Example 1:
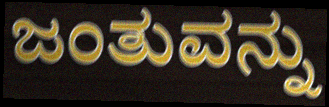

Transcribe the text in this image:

ಜಂತುವನ್ನು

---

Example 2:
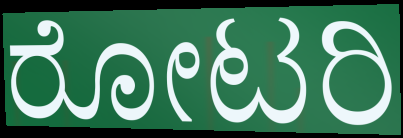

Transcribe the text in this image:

ರೋಟರಿ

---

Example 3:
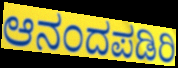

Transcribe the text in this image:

ಆನಂದಪಡಿರಿ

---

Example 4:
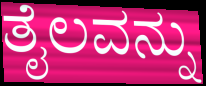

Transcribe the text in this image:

ತೈಲವನ್ನು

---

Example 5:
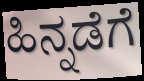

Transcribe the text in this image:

ಹಿನ್ನಡೆಗೆ